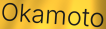
Okamoto